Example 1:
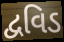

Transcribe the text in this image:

દ્વવિડ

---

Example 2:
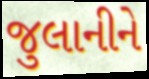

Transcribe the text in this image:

જુલાનીને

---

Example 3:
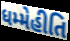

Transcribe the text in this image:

ધમ્મેહીતિ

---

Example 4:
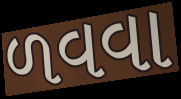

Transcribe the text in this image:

ળવવા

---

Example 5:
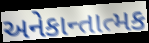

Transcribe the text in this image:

અનેકાન્તાત્મક